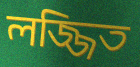
লজ্জিত